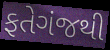
ફતેગંજથી